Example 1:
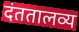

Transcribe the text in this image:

दंततालव्य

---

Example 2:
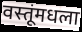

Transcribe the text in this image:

वस्तूंमधला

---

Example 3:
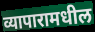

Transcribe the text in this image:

व्यापारामधील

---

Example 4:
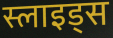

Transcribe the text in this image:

स्लाइड्स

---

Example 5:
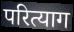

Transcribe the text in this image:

परित्याग